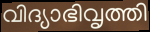
വിദ്യാഭിവൃത്തി